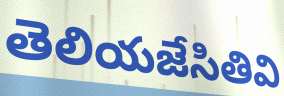
తెలియజేసితివి